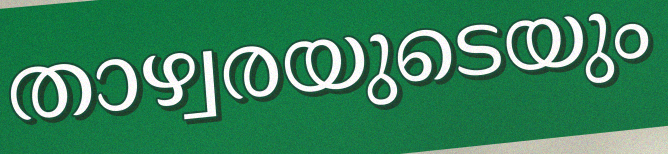
താഴ്വരയുടെയും